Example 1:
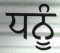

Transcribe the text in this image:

ਧਨੂੰ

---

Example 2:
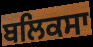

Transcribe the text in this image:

ਬਲਿਕਸਾ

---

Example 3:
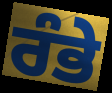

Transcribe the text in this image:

ਰੰਭੇ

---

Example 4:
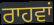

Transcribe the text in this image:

ਰਾਹਵਾਂ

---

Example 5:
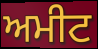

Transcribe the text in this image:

ਅਮੀਟ